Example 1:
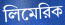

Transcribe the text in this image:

লিমেরিক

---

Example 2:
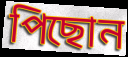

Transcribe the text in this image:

পিছোন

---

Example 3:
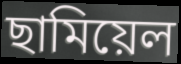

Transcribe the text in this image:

ছামিয়েল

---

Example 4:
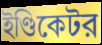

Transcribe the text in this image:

ইণ্ডিকেটর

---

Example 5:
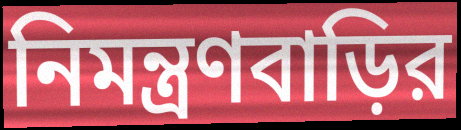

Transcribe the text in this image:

নিমন্ত্রণবাড়ির